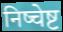
निष्चेष्ट